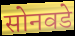
सोनवडे